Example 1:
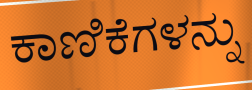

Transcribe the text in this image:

ಕಾಣಿಕೆಗಳನ್ನು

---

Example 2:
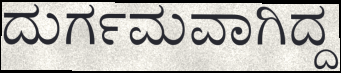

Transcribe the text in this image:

ದುರ್ಗಮವಾಗಿದ್ದ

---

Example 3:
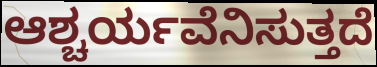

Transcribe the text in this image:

ಆಶ್ಚರ್ಯವೆನಿಸುತ್ತದೆ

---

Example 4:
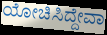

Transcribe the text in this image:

ಯೋಚಿಸಿದ್ದೇವಾ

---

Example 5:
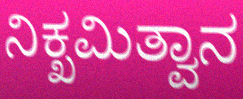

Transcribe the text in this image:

ನಿಕ್ಖಮಿತ್ವಾನ